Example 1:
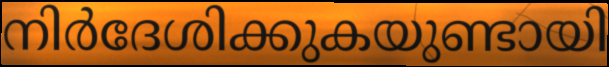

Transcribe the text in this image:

നിർദേശിക്കുകയുണ്ടായി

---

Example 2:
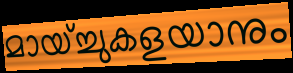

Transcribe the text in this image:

മായ്ച്ചുകളയാനും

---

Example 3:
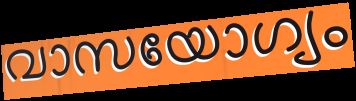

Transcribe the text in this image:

വാസയോഗ്യം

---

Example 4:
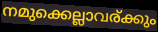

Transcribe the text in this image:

നമുക്കെല്ലാവര്ക്കും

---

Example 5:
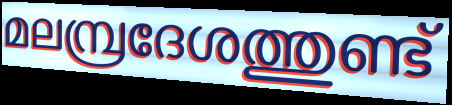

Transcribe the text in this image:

മലമ്പ്രദേശത്തുണ്ട്